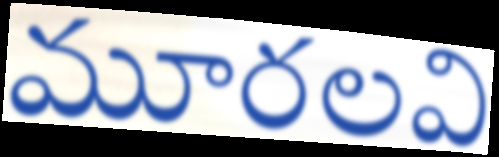
మూరలవి